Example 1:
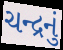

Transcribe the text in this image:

ચન્દ્રનું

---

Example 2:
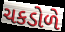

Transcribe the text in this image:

ચકડોળે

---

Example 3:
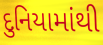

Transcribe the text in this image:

દુનિયામાંથી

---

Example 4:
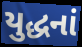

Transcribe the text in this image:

યુદ્ધનાં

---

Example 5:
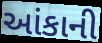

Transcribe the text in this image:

આંકાની